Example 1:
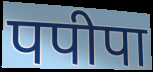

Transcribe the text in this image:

पपीपा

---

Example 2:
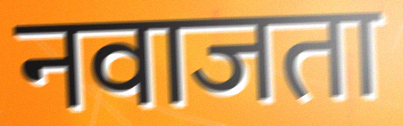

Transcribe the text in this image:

नवाजता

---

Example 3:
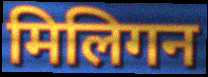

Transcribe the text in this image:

मिलिगन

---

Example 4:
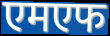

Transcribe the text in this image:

एमएफ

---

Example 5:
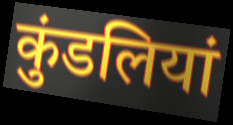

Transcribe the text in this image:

कुंडलियां